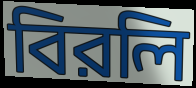
বিরলি